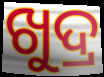
ଖୁଦ୍ର